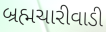
બ્રહ્મચારીવાડી